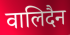
वालिदैन